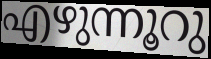
എഴുന്നൂറു